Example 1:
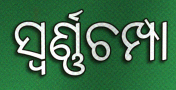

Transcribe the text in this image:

ସ୍ୱର୍ଣ୍ଣଚମ୍ପା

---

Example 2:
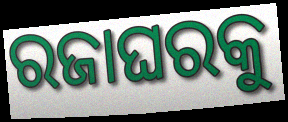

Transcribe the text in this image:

ରଜାଘରକୁ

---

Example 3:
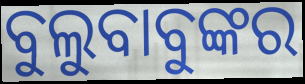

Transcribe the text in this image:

ବୁଲୁବାବୁଙ୍କର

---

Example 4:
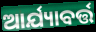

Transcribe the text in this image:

ଆର୍ଯ୍ୟାବର୍ତ୍ତ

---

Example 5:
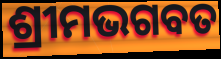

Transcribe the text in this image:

ଶ୍ରୀମଭଗବତ